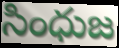
సింధుజ